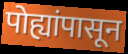
पोह्यांपासून